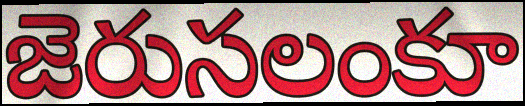
జెరుసలంకూ